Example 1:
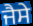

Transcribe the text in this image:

ਜੈਸੇ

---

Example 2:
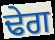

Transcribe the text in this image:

ਢੇਗ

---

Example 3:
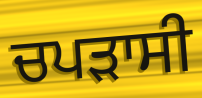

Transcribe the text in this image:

ਚਪੜਾਸੀ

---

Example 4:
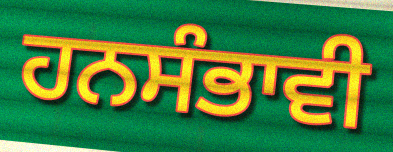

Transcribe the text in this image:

ਹਨਸੰਭਾਵੀ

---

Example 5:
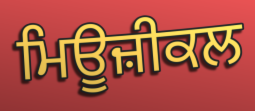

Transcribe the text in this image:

ਮਿਊਜ਼ੀਕਲ